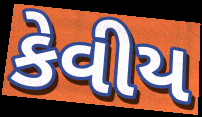
કેવીય